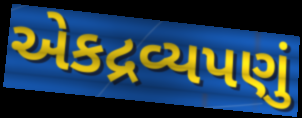
એકદ્રવ્યપણું